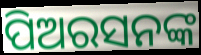
ପିଅରସନଙ୍କ